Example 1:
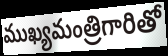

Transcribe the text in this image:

ముఖ్యమంత్రిగారితో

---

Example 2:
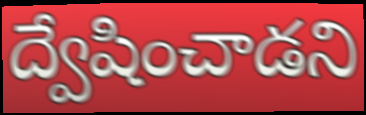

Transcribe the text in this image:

ద్వేషించాడని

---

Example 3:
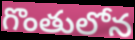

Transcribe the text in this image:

గొంతులోన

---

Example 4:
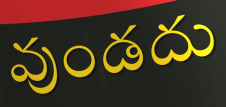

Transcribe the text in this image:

వుండదు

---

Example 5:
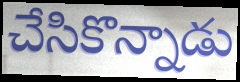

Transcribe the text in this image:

చేసికొన్నాడు